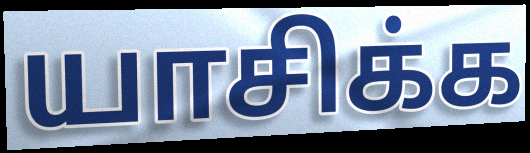
யாசிக்க